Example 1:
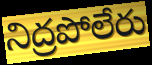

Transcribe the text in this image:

నిద్రపోలేరు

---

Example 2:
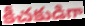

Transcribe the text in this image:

కీచకుడిగా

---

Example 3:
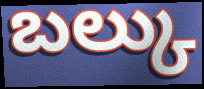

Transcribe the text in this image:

బల్కు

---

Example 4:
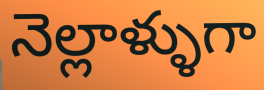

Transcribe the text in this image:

నెల్లాళ్ళుగా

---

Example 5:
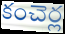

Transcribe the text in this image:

కంచెర్ల